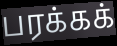
பரக்கக்